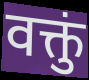
वक्तुं